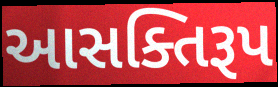
આસક્તિરૂપ